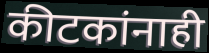
कीटकांनाही